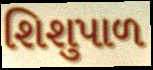
શિશુપાળ